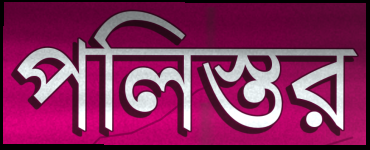
পলিস্তর